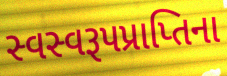
સ્વસ્વરૂપપ્રાપ્તિના